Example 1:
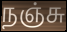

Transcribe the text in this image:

நஞ்சு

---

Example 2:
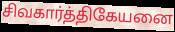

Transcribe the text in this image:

சிவகார்த்திகேயனை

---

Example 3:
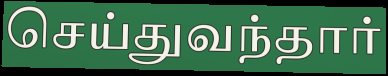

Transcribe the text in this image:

செய்துவந்தார்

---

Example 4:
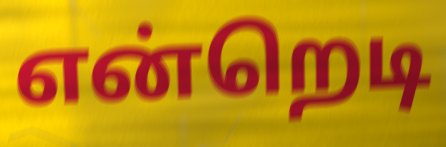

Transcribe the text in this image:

என்றெடி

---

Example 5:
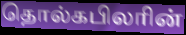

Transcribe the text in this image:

தொல்கபிலரின்